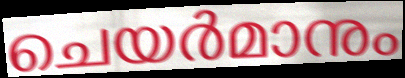
ചെയർമാനും